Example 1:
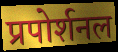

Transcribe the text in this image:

प्रपोर्शनल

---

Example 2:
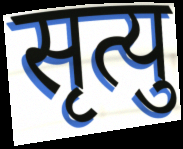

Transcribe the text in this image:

सृत्यु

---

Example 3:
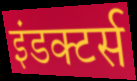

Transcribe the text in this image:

इंडक्टर्स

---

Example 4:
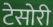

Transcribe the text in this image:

टेसोरी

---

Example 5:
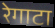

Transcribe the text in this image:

रेगाटा